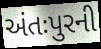
અંતઃપુરની